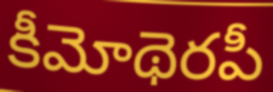
కీమోథెరపీ